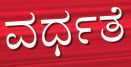
ವರ್ಧತೆ